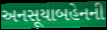
અનસૂયાબહેનની